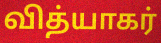
வித்யாகர்